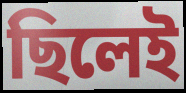
ছিলেই